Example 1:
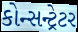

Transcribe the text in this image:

કોન્સન્ટ્રેટર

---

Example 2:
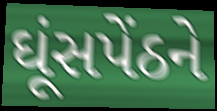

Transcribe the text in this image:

ઘૂંસપેંઠને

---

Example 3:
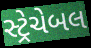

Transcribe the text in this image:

સ્ટ્રેચેબલ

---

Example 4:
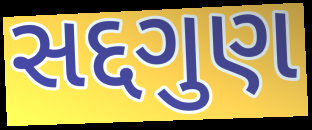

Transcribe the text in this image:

સદ્દગુણ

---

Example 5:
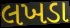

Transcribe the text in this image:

લખડા